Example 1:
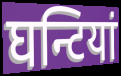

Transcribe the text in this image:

घन्टियां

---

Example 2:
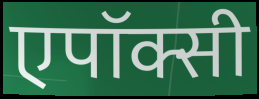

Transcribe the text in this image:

एपॉक्सी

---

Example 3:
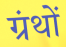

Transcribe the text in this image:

ग्रंथों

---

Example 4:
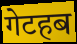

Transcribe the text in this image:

गेटहब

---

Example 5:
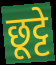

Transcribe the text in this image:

छूट्टे